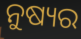
ନୁଷ୍ୟର